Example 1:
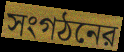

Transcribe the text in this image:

সংগঠনের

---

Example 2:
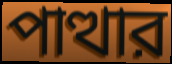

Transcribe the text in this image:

পাত্থার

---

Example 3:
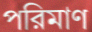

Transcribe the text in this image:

পরিমাণ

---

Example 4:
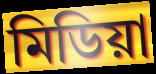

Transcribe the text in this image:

মিডিয়া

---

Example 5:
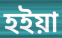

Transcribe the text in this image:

হইয়া